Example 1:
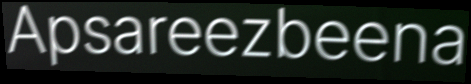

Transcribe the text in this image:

Apsareezbeena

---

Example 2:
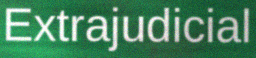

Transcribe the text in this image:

Extrajudicial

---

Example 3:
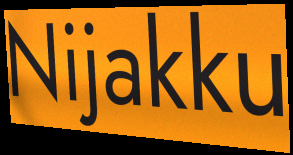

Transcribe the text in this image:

Nijakku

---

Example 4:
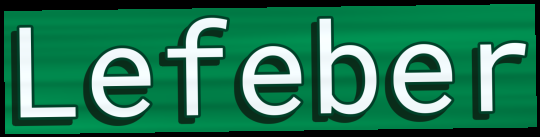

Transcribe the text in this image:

Lefeber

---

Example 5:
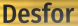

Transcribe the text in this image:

Desfor